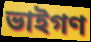
ভাইগণ